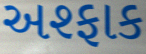
અશ્ફાક